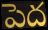
పెద